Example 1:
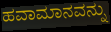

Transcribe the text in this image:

ಹವಾಮಾನವನ್ನು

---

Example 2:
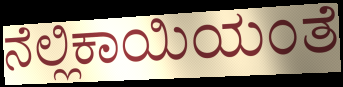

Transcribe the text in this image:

ನೆಲ್ಲಿಕಾಯಿಯಂತೆ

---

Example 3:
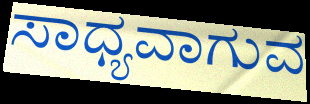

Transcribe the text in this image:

ಸಾಧ್ಯವಾಗುವ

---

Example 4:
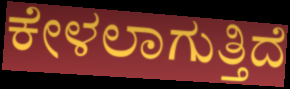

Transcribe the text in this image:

ಕೇಳಲಾಗುತ್ತಿದೆ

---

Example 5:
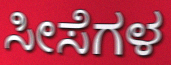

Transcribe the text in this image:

ಸೀಸೆಗಳ